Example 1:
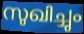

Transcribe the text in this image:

സുഖിച്ചും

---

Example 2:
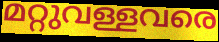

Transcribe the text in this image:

മറ്റുവള്ളവരെ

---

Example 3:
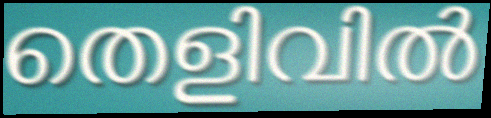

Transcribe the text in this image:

തെളിവിൽ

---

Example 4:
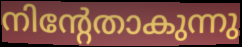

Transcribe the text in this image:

നിന്റേതാകുന്നു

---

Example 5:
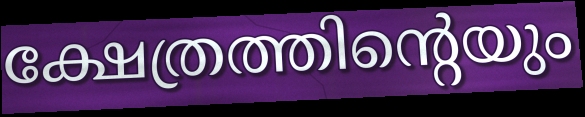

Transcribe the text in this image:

ക്ഷേത്രത്തിന്റെയും